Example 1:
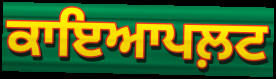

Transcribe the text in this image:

ਕਾਇਆਪਲ਼ਟ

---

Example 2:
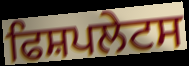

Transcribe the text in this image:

ਫਿਸ਼ਪਲੇਟਸ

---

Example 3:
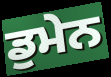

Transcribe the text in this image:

ਡੁਮੇਨ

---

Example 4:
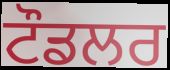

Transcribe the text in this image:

ਟੌਡਲਰ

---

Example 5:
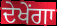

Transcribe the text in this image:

ਦੇਖੇਂਗਾ